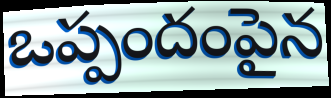
ఒప్పందంపైన